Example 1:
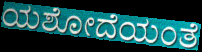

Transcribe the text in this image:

ಯಶೋದೆಯಂತೆ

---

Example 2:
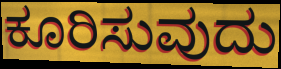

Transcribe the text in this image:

ಕೂರಿಸುವುದು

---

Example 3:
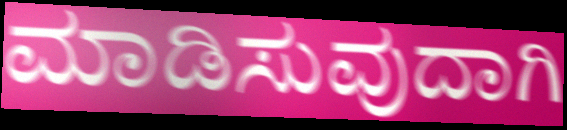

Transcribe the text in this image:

ಮಾಡಿಸುವುದಾಗಿ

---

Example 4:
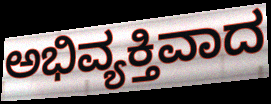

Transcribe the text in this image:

ಅಭಿವ್ಯಕ್ತಿವಾದ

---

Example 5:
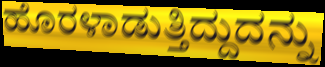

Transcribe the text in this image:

ಹೊರಳಾಡುತ್ತಿದ್ದುದನ್ನು